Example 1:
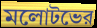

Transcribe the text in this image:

মলোটভের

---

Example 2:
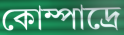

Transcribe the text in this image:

কোম্পাদ্রে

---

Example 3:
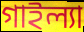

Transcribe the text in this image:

গাইল্যা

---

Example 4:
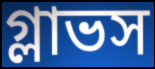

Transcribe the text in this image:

গ্লাভস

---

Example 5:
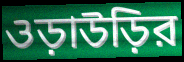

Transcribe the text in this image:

ওড়াউড়ির